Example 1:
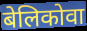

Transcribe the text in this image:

बेलिकोवा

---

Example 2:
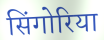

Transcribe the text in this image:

सिंगोरिया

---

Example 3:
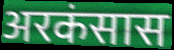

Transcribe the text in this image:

अरकंसास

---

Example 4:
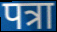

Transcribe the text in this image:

पत्रा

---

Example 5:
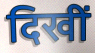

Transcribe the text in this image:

दिखीं